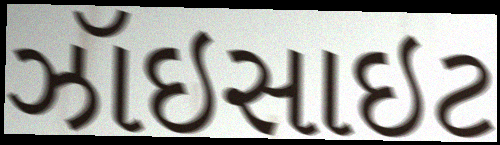
ઝૉઇસાઇટ